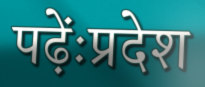
पढ़ेंःप्रदेश